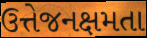
ઉત્તેજનક્ષમતા